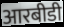
आरबीडी